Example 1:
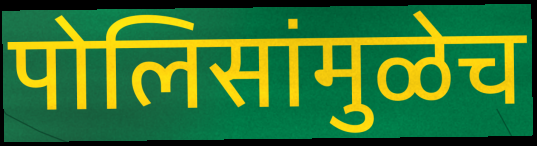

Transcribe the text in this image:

पोलिसांमुळेच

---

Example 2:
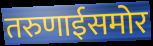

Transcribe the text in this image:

तरुणाईसमोर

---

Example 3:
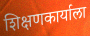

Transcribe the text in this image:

शिक्षणकार्याला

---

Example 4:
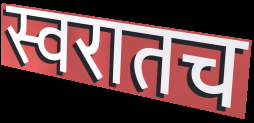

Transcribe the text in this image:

स्वरातच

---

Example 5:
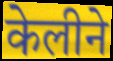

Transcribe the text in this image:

केलीने